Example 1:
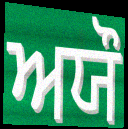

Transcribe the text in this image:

ਅਯੌ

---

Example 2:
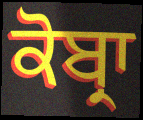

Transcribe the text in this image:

ਕੋਬ੍ਰਾ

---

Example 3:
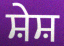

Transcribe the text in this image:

ਸ਼ੇਸ਼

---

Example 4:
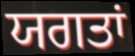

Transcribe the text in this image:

ਯਗਤਾਂ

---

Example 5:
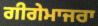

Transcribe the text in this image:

ਗੀਗੇਮਾਜਰਾ